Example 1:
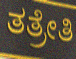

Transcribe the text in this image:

ತತ್ರೇತಿ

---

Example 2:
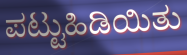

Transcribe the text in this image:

ಪಟ್ಟುಹಿಡಿಯಿತು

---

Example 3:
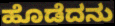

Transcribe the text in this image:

ಹೊಡೆದನು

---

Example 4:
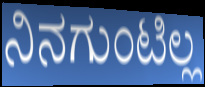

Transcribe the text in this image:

ನಿನಗುಂಟಿಲ್ಲ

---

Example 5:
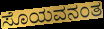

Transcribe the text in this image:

ಸೊಯವನಂತ